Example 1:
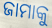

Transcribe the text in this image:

ଜାମାକୁ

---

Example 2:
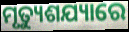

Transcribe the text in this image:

ମୃତ୍ୟୁଶଯ୍ୟାରେ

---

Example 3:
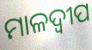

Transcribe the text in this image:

ମାଳଦ୍ଵୀପ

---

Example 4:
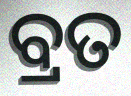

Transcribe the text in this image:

ବ୍ରତ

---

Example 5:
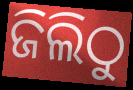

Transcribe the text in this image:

ଜିଲିଠୁ